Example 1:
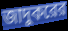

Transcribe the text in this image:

জাদুকরের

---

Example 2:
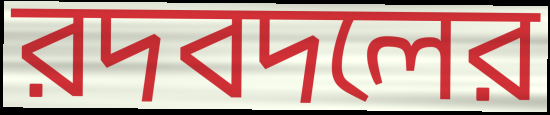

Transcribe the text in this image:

রদবদলের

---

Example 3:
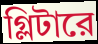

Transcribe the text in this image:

গ্লিটারে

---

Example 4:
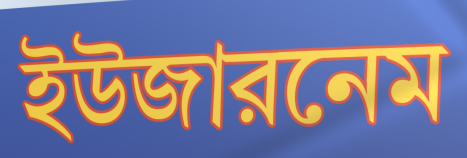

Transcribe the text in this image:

ইউজারনেম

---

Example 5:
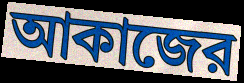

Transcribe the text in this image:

আকাজের